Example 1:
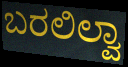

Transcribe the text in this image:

ಬರಲಿಲ್ವಾ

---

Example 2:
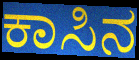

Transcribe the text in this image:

ಕಾಸಿನ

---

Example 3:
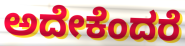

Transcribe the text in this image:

ಅದೇಕೆಂದರೆ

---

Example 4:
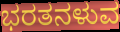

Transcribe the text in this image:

ಭರತನಳುವ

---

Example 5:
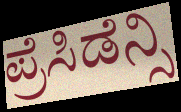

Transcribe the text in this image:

ಪ್ರೆಸಿಡೆನ್ಸಿ